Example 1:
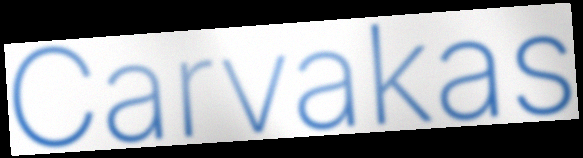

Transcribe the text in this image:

Carvakas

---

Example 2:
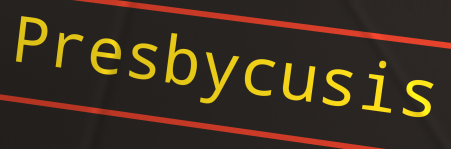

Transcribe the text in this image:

Presbycusis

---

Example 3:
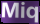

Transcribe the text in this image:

Miq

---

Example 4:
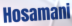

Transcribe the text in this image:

Hosamani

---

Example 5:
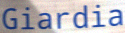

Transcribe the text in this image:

Giardia